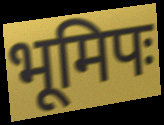
भूमिपः